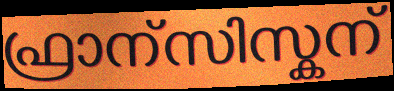
ഫ്രാന്സിസ്കന്